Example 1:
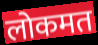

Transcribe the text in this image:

लोकमत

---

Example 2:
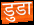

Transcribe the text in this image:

डुडा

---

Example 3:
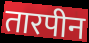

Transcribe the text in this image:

तारपीन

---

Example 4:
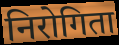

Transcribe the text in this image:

निरोगिता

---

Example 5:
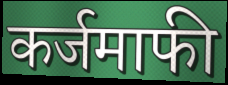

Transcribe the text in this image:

कर्जमाफी